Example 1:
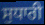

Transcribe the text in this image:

ਸੁਧਾਰੀ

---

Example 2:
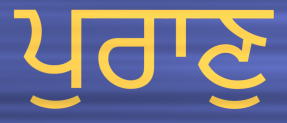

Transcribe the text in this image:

ਪੁਰਾਣੁ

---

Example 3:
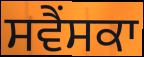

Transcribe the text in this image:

ਸਵੈਂਸਕਾ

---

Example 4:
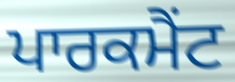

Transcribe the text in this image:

ਪਾਰਕਮੈਂਟ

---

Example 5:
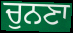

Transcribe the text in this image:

ਚੁਨਣਾ